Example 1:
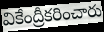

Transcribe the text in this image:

వికేంద్రీకరించారు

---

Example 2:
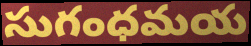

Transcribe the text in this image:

సుగంధమయ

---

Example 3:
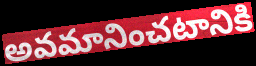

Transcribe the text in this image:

అవమానించటానికి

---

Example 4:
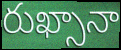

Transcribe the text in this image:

రుఖ్సానా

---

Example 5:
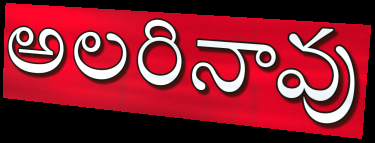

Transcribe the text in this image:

అలరినావు